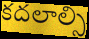
కదలాల్సి